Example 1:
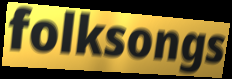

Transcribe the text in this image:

folksongs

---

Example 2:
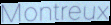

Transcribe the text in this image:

Montreux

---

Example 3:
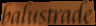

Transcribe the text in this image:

balustrade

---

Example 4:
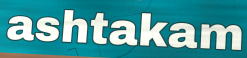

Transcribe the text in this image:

ashtakam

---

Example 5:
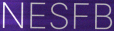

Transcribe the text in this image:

NESFB